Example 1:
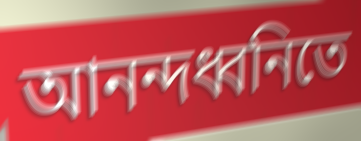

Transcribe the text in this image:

আনন্দধ্বনিতে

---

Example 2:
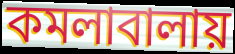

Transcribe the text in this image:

কমলাবালায়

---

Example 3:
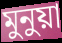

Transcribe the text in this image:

মুনুয়া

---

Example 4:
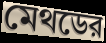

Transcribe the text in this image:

মেথডের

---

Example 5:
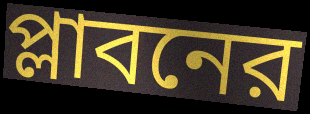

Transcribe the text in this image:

প্লাবনের